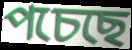
পচেছে